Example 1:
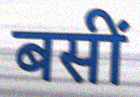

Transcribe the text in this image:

बसीं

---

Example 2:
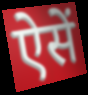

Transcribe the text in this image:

ऐसें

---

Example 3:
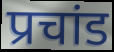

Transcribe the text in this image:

प्रचांड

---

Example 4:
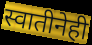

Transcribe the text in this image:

स्वातीनेही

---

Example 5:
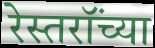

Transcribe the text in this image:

रेस्तरॉंच्या